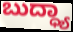
ಬುದ್ಧ್ಯಾ